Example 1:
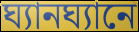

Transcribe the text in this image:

ঘ্যানঘ্যানে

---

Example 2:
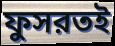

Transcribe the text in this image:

ফুসরতই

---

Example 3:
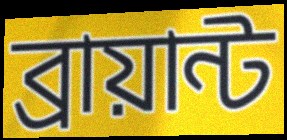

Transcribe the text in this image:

ব্রায়ান্ট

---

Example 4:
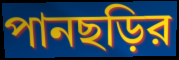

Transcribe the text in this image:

পানছড়ির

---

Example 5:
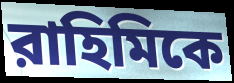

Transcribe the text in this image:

রাহিমিকে